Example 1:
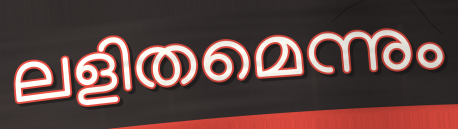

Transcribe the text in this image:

ലളിതമെന്നും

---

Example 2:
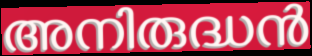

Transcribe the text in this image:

അനിരുദ്ധൻ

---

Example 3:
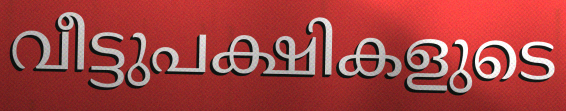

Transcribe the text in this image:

വീട്ടുപക്ഷികളുടെ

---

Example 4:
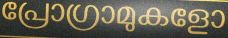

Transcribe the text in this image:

പ്രോഗ്രാമുകളോ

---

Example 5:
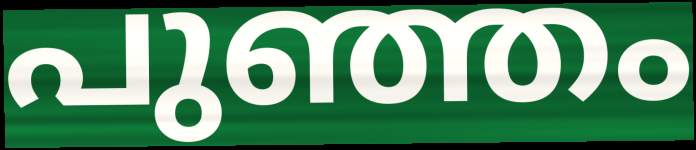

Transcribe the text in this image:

പുഞ്ഞം